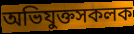
অভিযুক্তসকলক